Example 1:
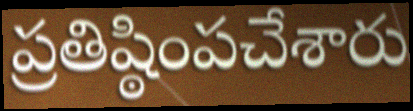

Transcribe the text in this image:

ప్రతిష్ఠింపచేశారు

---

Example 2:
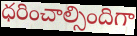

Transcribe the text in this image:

ధరించాల్సిందిగా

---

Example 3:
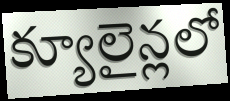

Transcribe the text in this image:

క్యూలైన్లలో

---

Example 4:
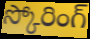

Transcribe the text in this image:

స్కోరింగ్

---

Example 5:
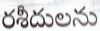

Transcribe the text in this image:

రశీదులను